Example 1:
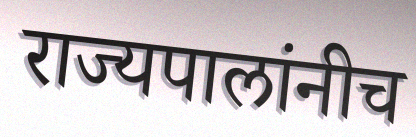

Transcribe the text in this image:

राज्यपालांनीच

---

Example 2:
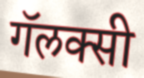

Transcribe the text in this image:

गॅलक्सी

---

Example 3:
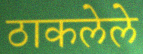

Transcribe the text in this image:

ठाकलेले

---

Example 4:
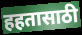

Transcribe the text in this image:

हहतासाठी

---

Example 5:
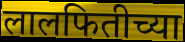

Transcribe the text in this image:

लालफितीच्या